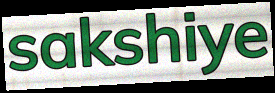
sakshiye